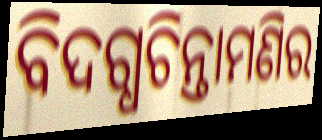
ବିଦଗ୍ଧଚିନ୍ତାମଣିର